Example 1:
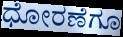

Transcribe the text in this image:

ಧೋರಣೆಗೂ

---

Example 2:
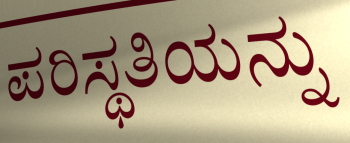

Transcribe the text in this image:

ಪರಿಸ್ಥತಿಯನ್ನು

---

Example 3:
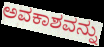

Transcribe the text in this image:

ಅವಕಾಶವನ್ನು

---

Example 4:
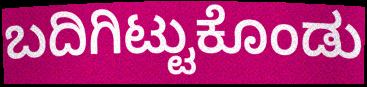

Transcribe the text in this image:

ಬದಿಗಿಟ್ಟುಕೊಂಡು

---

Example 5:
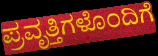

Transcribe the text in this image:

ಪ್ರವೃತ್ತಿಗಳೊಂದಿಗೆ